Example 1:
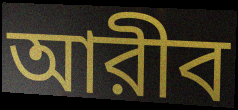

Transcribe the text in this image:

আরীব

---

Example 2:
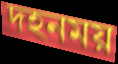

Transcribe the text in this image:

দহনময়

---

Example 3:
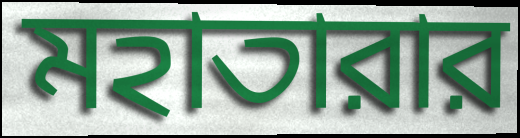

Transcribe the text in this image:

মহাতারার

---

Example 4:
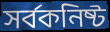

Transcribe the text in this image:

সর্বকনিষ্ট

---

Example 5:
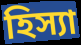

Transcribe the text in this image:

হিস্যা